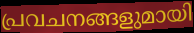
പ്രവചനങ്ങളുമായി